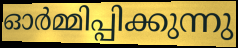
ഓർമ്മിപ്പിക്കുന്നു